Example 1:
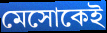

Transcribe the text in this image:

মেসোকেই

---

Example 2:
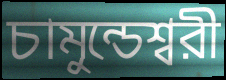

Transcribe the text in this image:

চামুন্ডেশ্বরী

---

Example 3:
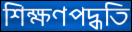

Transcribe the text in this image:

শিক্ষণপদ্ধতি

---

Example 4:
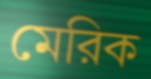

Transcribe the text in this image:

মেরিক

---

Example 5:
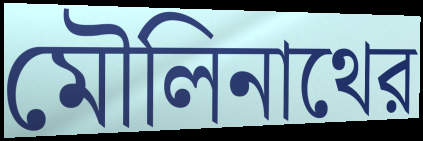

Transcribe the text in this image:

মৌলিনাথের